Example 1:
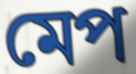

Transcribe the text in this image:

মেপ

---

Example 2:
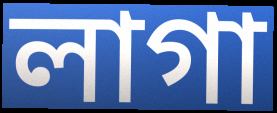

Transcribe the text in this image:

লাগা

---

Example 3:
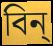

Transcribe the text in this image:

বিন্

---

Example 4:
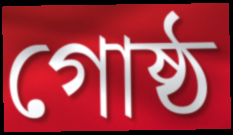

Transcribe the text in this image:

গোষ্ঠ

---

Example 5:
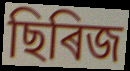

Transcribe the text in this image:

ছিৰিজ